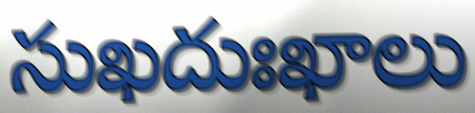
సుఖదుఃఖాలు